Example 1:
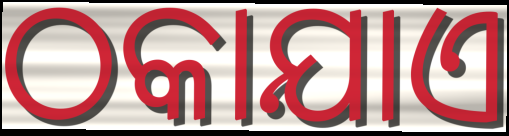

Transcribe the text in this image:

ଠକାଯାଏ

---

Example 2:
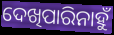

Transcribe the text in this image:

ଦେଖିପାରିନାହୁଁ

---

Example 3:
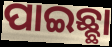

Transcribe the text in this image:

ପାଇଛ୍ଛା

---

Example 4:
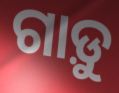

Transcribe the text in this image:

ଗାଡ଼ୁ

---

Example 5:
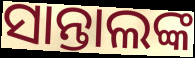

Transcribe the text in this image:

ସାନ୍ତାଲଙ୍କ